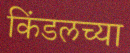
किंडलच्या